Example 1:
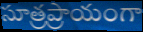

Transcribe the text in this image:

సూత్రప్రాయంగా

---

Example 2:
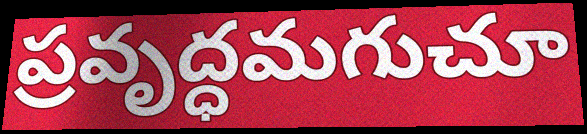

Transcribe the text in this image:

ప్రవృద్ధమగుచూ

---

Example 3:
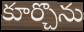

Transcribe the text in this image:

కూర్చొను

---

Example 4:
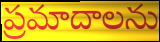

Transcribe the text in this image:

ప్రమాదాలను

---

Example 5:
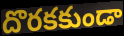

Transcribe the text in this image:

దొరకకుండా